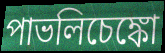
পাভলিচেঙ্কো